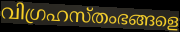
വിഗ്രഹസ്തംഭങ്ങളെ